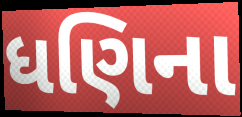
ધણિના